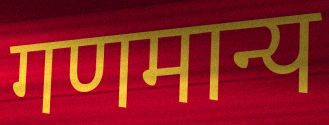
गणमान्य